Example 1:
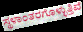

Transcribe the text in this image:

ಸ್ಥಳಾಂತರಗೊಳ್ಳುತ್ತಿವೆ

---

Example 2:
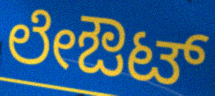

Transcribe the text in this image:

ಲೇಔಟ್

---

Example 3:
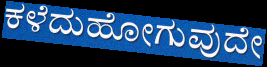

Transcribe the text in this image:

ಕಳೆದುಹೋಗುವುದೇ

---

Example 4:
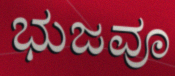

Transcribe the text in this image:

ಭುಜವೂ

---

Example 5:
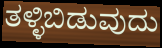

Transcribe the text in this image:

ತಳ್ಳಿಬಿಡುವುದು